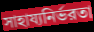
সাহায্যনির্ভরতা